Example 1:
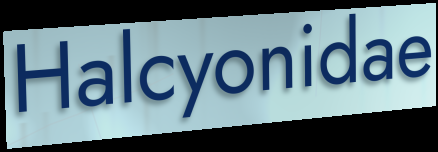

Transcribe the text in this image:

Halcyonidae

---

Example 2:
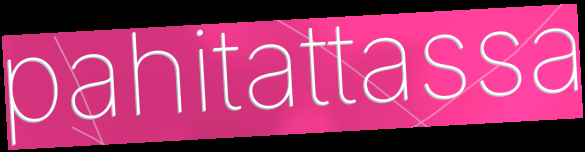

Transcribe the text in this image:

pahitattassa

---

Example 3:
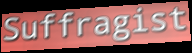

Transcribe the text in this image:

Suffragist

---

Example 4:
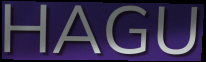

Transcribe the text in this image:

HAGU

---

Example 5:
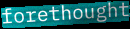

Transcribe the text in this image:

forethought